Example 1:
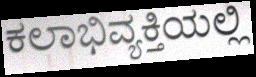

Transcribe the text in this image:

ಕಲಾಭಿವ್ಯಕ್ತಿಯಲ್ಲಿ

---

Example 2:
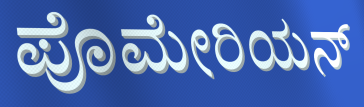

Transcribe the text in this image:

ಪೊಮೇರಿಯನ್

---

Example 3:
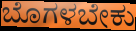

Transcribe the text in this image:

ಬೊಗಳಬೇಕು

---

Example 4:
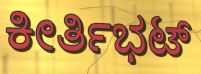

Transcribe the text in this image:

ಕೀರ್ತಿಭಟ್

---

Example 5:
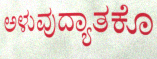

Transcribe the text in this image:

ಅಳುವುದ್ಯಾತಕೊ